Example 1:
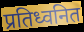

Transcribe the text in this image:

प्रतिध्वनित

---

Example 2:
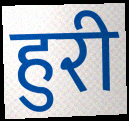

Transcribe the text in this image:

हुरी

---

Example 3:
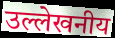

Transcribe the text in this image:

उल्लेखनीय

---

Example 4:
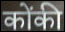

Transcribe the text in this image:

कोंकी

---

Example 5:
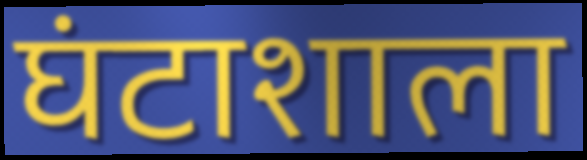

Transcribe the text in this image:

घंटाशाला